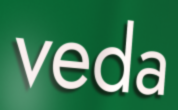
veda